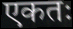
एकतः